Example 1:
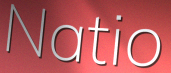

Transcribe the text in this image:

Natio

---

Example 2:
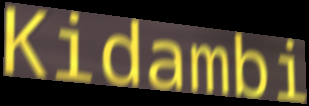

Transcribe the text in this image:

Kidambi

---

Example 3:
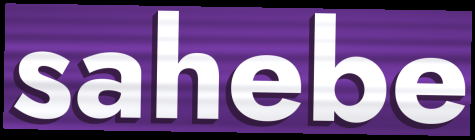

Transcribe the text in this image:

sahebe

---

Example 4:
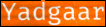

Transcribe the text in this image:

Yadgaar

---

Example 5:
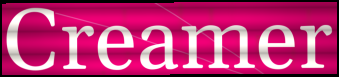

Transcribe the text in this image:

Creamer